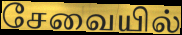
சேவையில்